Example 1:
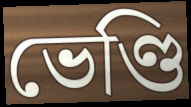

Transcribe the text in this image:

ভেণ্ডি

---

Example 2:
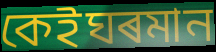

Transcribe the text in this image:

কেইঘৰমান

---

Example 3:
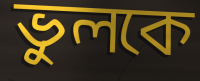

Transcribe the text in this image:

ভুলকে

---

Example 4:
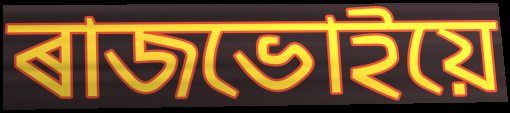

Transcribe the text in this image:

ৰাজভোইয়ে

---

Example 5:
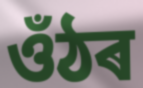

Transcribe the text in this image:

ওঁঠৰ